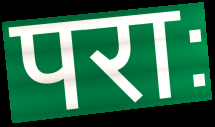
पराः